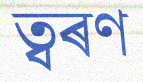
ত্বৰণ